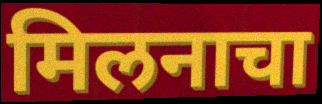
मिलनाचा